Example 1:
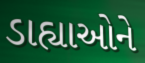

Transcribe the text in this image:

ડાહ્યાઓને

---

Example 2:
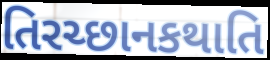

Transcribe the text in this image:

તિરચ્છાનકથાતિ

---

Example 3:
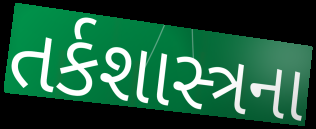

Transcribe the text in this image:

તર્કશાસ્ત્રના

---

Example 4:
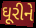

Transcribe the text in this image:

ઘૂરીને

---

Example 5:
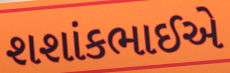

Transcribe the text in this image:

શશાંકભાઈએ